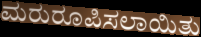
ಮರುರೂಪಿಸಲಾಯಿತು